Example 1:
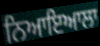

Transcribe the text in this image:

ਨਿਆਇਆਲਾ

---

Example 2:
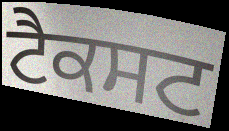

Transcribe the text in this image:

ਟੈਕਸਟ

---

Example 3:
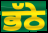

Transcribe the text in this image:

ਭੱਠੇ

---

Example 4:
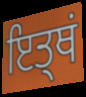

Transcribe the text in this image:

ਇਤ੍ਥਂ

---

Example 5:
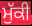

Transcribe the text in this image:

ਮੁੱਕੀ